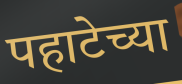
पहाटेच्या